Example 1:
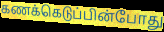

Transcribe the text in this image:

கணக்கெடுப்பின்போது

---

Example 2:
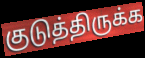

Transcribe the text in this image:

குடுத்திருக்க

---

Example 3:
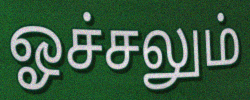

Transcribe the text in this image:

ஓச்சலும்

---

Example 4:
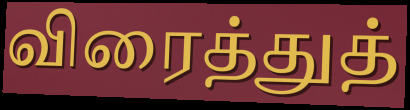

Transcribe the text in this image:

விரைத்துத்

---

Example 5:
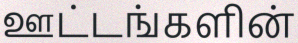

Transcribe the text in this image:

ஊட்டங்களின்